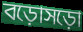
বড়োসড়ো